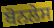
ਬੋਨਲੇਸ